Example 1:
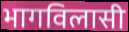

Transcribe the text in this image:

भागविलासी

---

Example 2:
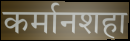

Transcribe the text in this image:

कर्मानशहा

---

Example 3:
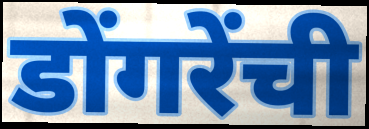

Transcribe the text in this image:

डोंगरेंची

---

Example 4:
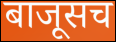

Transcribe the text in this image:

बाजूसच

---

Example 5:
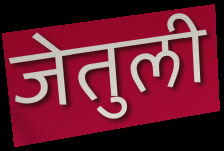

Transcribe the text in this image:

जेतुली